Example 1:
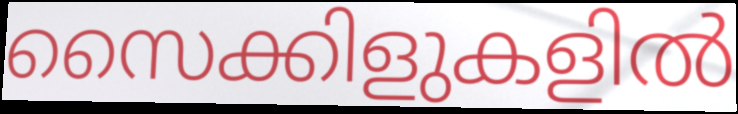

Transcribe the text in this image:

സൈക്കിളുകളിൽ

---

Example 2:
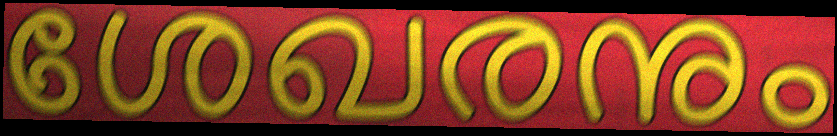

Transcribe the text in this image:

ശേഖരനും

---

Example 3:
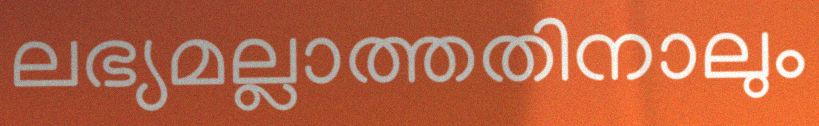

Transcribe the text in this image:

ലഭ്യമല്ലാത്തതിനാലും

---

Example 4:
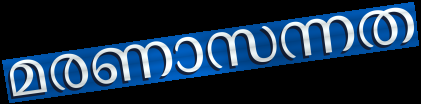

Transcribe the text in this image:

മരണാസന്നത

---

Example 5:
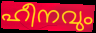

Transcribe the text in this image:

ഹീനവും